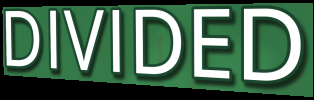
DIVIDED